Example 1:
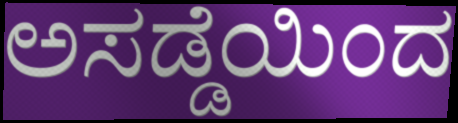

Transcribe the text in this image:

ಅಸಡ್ಡೆಯಿಂದ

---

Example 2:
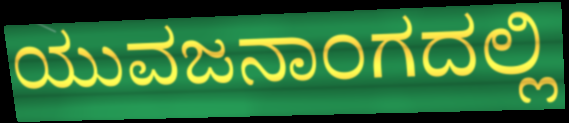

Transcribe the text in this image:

ಯುವಜನಾಂಗದಲ್ಲಿ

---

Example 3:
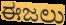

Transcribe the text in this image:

ಈಜಲು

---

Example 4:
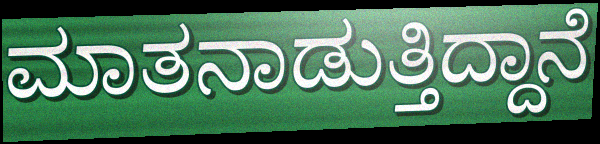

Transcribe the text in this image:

ಮಾತನಾಡುತ್ತಿದ್ದಾನೆ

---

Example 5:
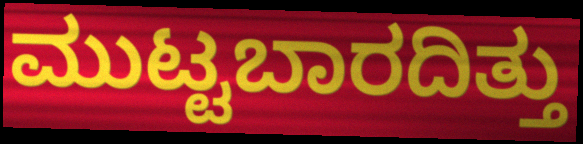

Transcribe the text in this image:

ಮುಟ್ಟಬಾರದಿತ್ತು